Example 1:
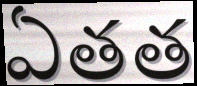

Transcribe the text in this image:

ఏతత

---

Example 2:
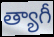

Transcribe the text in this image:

త్యాగీ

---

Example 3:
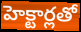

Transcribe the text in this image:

హెక్టార్లతో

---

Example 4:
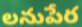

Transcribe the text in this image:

లనుపేర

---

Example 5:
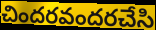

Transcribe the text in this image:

చిందరవందరచేసి